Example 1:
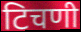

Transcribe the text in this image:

टिचणी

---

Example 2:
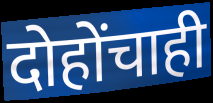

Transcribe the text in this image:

दोहोंचाही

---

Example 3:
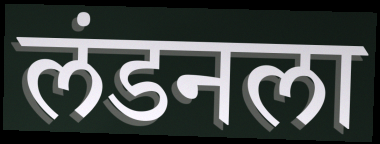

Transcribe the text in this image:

लंडनला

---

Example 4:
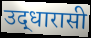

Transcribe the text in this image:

उद्धारासी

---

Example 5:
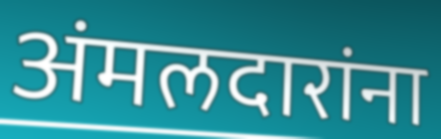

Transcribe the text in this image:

अंमलदारांना